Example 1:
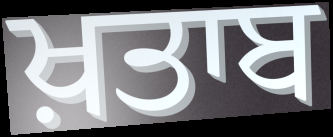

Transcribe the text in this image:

ਖ਼ਤਾਬ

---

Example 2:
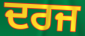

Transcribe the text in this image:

ਦਰਜ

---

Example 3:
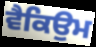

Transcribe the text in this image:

ਵੈਕਿਉਮ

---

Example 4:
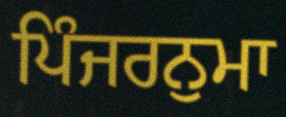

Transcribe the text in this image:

ਪਿੰਜਰਨੁਮਾ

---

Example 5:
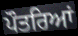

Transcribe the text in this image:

ਪੌਤਰਿਆਂ